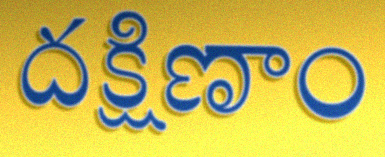
దక్షిణాం